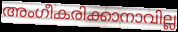
അംഗീകരിക്കാനാവില്ല